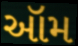
ઑમ